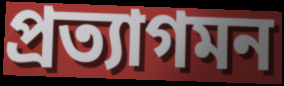
প্রত্যাগমন